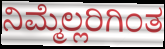
ನಿಮ್ಮೆಲ್ಲರಿಗಿಂತ